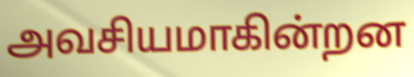
அவசியமாகின்றன